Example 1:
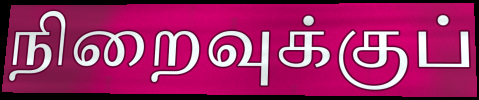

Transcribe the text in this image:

நிறைவுக்குப்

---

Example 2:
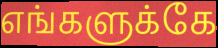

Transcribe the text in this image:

எங்களுக்கே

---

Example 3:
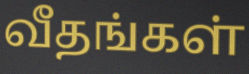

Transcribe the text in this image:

வீதங்கள்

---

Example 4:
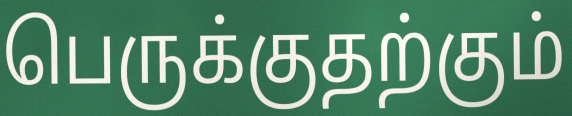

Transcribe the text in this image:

பெருக்குதற்கும்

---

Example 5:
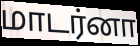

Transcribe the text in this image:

மாடர்னா